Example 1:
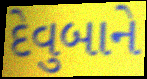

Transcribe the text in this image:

દેવુબાને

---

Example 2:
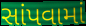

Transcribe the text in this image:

સાંપવામાં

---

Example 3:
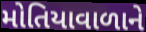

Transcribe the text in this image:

મોતિયાવાળાને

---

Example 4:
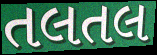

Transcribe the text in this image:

તલતલ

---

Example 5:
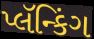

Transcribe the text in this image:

પ્લૅન્કિંગ